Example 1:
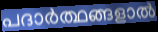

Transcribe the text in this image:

പദാർത്ഥങ്ങളാൽ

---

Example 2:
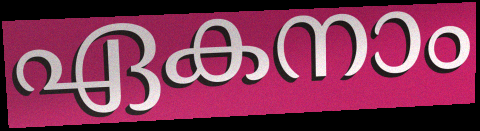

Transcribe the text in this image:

ഏകനാം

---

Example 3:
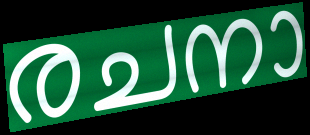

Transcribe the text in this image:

രചനാ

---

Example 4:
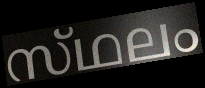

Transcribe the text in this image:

സ്‌ഥലം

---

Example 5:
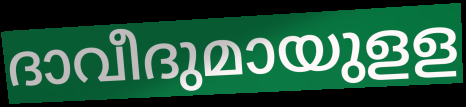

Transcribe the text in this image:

ദാവീദുമായുളള